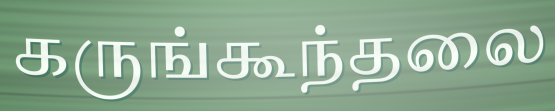
கருங்கூந்தலை